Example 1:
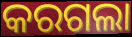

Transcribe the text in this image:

କରଗଲା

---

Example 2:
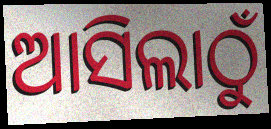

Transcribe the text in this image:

ଆସିଲାଠୁଁ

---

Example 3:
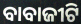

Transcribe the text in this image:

ବାବାଜୀଟି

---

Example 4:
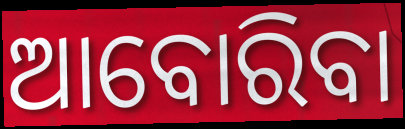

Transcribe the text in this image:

ଆବୋରିବା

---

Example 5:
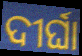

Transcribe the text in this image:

ଦୀର୍ଘା